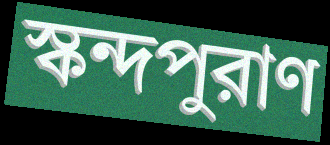
স্কন্দপুরাণ